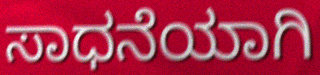
ಸಾಧನೆಯಾಗಿ